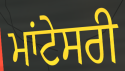
ਮਾਂਟੇਸਰੀ